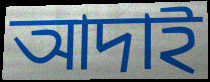
আদাই